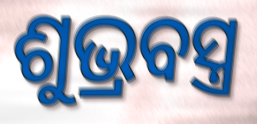
ଶୁଭ୍ରବସ୍ତ୍ର